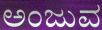
ಅಂಜುವ